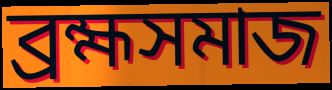
ব্রহ্মসমাজ